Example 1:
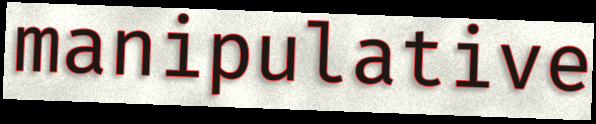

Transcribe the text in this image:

manipulative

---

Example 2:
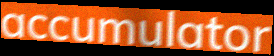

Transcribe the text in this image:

accumulator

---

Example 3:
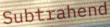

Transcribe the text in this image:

Subtrahend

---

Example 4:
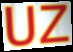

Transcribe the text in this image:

UZ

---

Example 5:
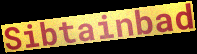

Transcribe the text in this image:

Sibtainbad